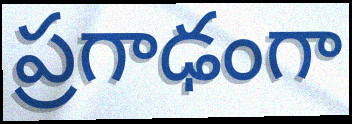
ప్రగాఢంగా